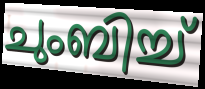
ചുംബിച്ച്